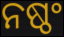
ନଷ୍ଠଂ